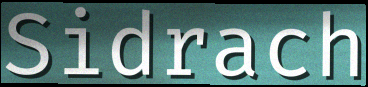
Sidrach